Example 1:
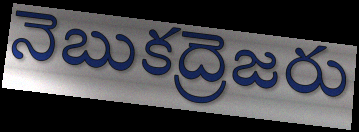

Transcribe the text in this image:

నెబుకద్రెజరు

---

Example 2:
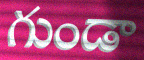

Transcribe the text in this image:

గుండా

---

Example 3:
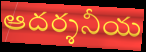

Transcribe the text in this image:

ఆదర్శనీయ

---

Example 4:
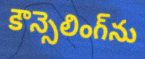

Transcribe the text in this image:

కౌన్సెలింగ్‌ను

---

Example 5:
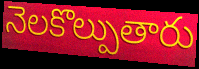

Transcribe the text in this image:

నెలకొల్పుతారు